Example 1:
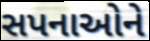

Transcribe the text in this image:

સપનાઓને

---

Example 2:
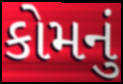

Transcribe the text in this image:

કોમનું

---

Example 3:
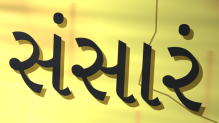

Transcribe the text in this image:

સંસારં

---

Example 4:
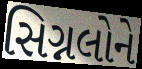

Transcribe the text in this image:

સિગ્નલોને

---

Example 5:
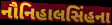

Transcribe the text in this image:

નૌનિહાલસિંહના